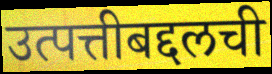
उत्पत्तीबद्दलची